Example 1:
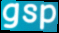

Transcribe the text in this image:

gsp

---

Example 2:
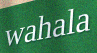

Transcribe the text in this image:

wahala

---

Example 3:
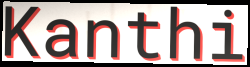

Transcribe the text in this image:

Kanthi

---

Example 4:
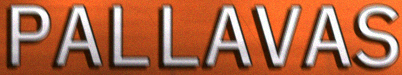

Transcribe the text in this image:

PALLAVAS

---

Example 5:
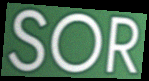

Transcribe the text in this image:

SOR